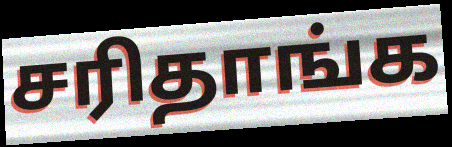
சரிதாங்க